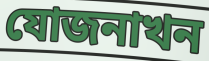
যোজনাখন